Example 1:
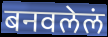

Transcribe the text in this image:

बनवलेलं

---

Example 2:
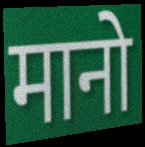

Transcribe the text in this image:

मानो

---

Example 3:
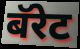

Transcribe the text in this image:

बॅरेट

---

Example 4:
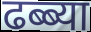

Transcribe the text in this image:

ढब्ब्या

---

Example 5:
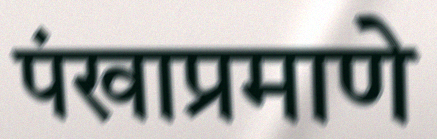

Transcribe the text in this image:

पंखाप्रमाणे